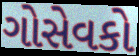
ગોસેવકો